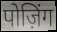
पोज़िंग